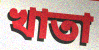
খাতা